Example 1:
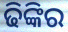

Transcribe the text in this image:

ଢିଙ୍କିର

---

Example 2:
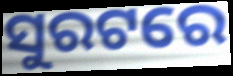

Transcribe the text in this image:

ସୁରଟରେ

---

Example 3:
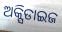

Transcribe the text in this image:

ଅକ୍ସିଡାଇଜ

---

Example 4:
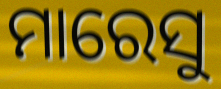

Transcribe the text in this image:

ମାରେସୁ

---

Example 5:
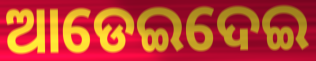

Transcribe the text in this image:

ଆଡେଇଦେଇ